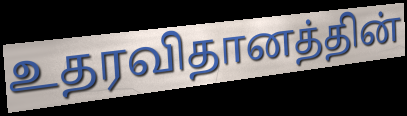
உதரவிதானத்தின்